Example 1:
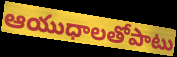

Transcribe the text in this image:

ఆయుధాలతోపాటు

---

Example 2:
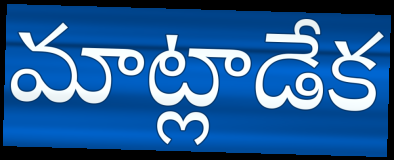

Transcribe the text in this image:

మాట్లాడేక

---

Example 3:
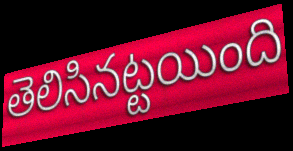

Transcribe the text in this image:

తెలిసినట్టయింది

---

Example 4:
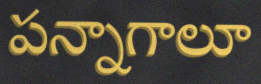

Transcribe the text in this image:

పన్నాగాలూ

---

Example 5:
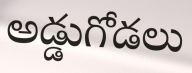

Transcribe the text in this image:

అడ్డుగోడలు